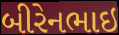
બીરેનભાઇ